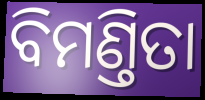
ବିମଣ୍ତିତା